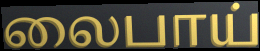
லைபாய்